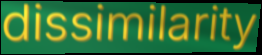
dissimilarity